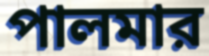
পালমার